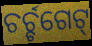
ଚର୍ଚ୍ଚଗେଟ୍